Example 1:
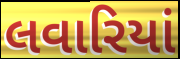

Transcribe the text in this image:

લવારિયાં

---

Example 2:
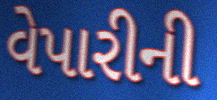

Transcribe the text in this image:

વેપારીની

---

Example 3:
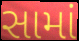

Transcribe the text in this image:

સામાં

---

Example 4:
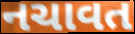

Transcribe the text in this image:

નચાવત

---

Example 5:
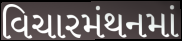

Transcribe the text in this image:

વિચારમંથનમાં